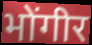
भोंगीर